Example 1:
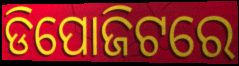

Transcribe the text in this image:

ଡିପୋଜିଟରେ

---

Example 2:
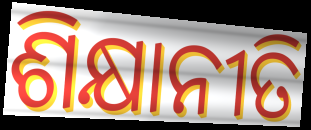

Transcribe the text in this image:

ଶିକ୍ଷାନୀତି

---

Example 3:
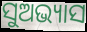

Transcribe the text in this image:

ସୁଅଭ୍ୟାସ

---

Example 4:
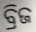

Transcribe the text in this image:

ବ୍ରିଜ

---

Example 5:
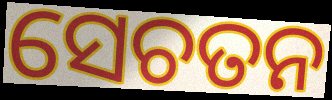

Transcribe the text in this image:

ସେଚତନ